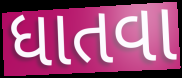
ધાતવા